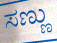
ಸಣ್ಣು